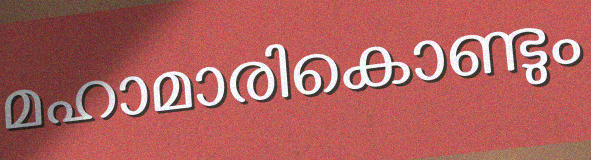
മഹാമാരികൊണ്ടും